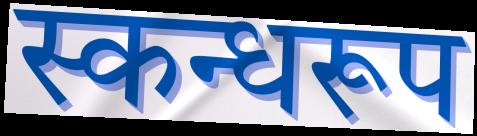
स्कन्धरूप